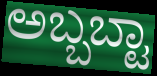
ಅಬ್ಬಬ್ಟಾ